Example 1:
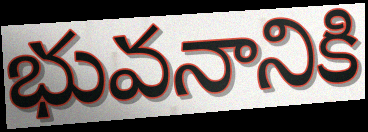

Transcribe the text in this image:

భువనానికి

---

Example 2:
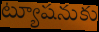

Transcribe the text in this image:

ట్యూషనుకు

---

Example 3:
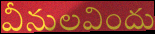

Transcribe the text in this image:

వీనులవిందు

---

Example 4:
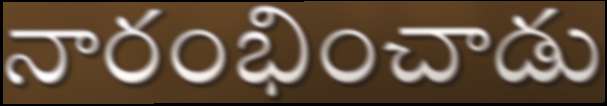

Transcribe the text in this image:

నారంభించాడు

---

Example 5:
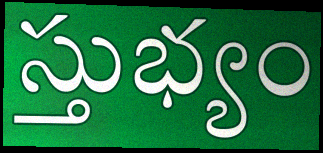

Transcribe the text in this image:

స్తుభ్యం